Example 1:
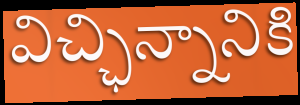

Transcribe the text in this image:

విచ్ఛిన్నానికి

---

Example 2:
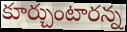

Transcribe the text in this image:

కూర్చుంటారన్న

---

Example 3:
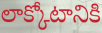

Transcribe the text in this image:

లాక్కోటానికి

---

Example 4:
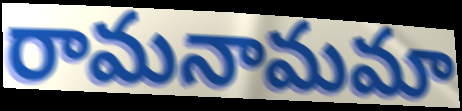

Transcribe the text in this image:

రామనామమా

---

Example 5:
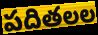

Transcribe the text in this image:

పదితలల